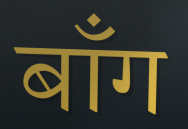
बाँग